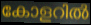
കോളറിൽ